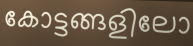
കോട്ടങ്ങളിലോ